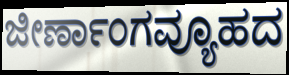
ಜೀರ್ಣಾಂಗವ್ಯೂಹದ